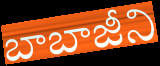
బాబాజీని